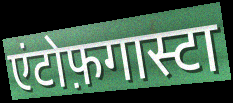
एंटोफ़गास्टा